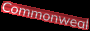
Commonweal